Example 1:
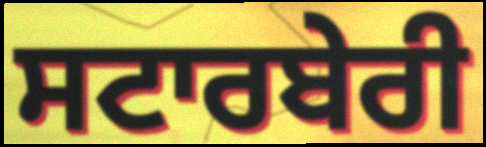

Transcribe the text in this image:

ਸਟਾਰਬੇਰੀ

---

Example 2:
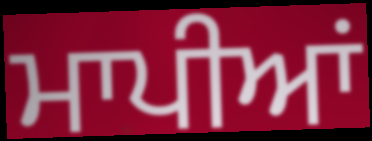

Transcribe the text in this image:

ਮਾਪੀਆਂ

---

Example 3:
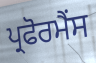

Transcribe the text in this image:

ਪ੍ਰਫੋਰਮੈਂਸ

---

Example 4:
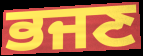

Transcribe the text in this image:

ਭਜਣ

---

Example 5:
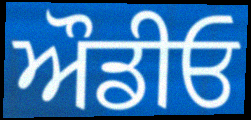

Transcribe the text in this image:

ਔਡੀਓ